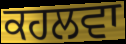
ਕਹਲਵਾ